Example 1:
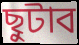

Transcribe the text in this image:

ছুটাব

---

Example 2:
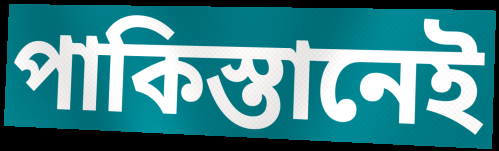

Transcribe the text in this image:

পাকিস্তানেই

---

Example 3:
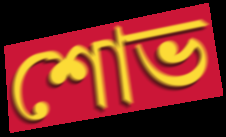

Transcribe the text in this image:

শোভ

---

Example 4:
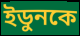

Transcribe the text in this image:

ইডুনকে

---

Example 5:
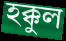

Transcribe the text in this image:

হক্কুল